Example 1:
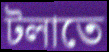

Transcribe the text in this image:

টলাতে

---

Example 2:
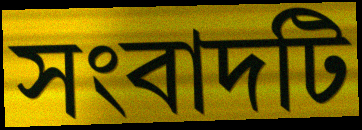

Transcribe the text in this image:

সংবাদটি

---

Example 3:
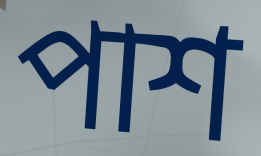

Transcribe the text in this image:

পাশ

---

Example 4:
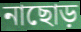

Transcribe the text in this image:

নাছোড়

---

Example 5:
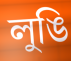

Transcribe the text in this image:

লুঙি